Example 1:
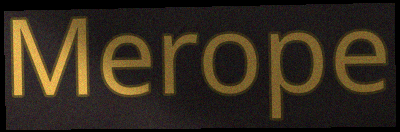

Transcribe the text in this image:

Merope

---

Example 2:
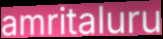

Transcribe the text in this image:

amritaluru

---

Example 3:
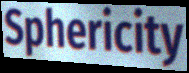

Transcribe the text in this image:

Sphericity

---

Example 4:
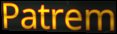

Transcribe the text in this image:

Patrem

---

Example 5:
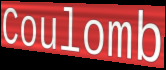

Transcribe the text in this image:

Coulomb